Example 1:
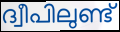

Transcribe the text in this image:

ദ്വീപിലുണ്ട്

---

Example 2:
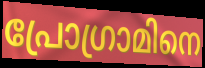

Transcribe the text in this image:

പ്രോഗ്രാമിനെ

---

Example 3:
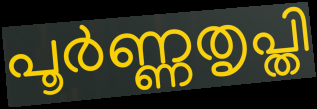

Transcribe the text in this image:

പൂർണ്ണതൃപ്തി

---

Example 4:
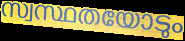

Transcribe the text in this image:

സ്വസ്ഥതയോടും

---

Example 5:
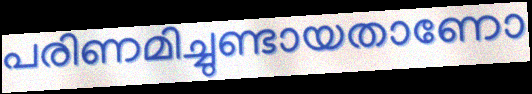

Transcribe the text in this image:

പരിണമിച്ചുണ്ടായതാണോ